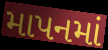
માપનમાં